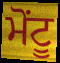
ਮੋਂਟੂ